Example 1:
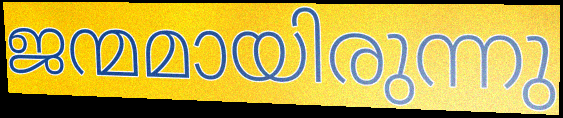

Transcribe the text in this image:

ജന്മമായിരുന്നു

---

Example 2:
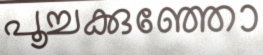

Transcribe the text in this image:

പൂച്ചക്കുഞ്ഞോ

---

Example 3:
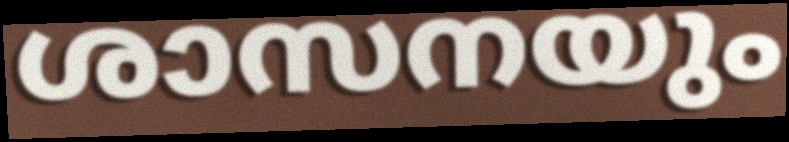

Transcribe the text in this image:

ശാസനയും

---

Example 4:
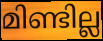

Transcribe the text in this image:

മിണ്ടില്ല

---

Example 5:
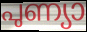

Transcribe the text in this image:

പുണ്യാ